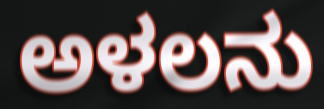
ಅಳಲನು